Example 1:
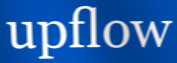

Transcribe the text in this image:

upflow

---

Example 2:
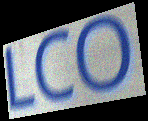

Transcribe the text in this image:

LCO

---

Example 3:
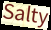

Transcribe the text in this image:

Salty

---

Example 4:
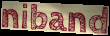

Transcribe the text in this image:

niband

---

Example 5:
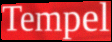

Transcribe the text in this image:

Tempel